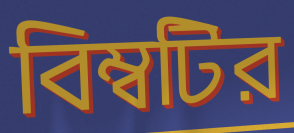
বিম্বটির